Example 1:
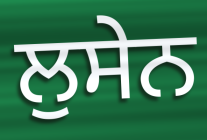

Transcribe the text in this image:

ਲੁਸੇਨ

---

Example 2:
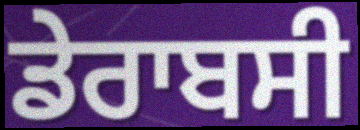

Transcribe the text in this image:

ਡੇਰਾਬਸੀ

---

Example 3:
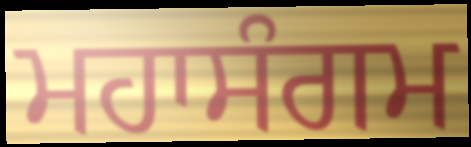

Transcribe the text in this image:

ਮਹਾਸੰਗਮ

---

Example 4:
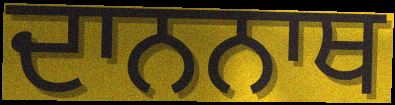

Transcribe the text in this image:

ਦਾਨਨਾਥ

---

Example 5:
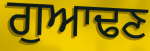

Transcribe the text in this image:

ਗੁਆਢਣ